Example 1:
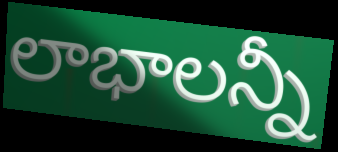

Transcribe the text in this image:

లాభాలన్నీ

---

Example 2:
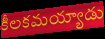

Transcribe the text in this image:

కీలకమయ్యాడు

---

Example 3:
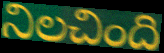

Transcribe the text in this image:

నిలచింది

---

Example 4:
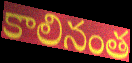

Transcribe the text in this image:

కాలినంత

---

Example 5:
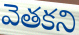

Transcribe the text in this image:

వెతకని